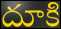
దూకి